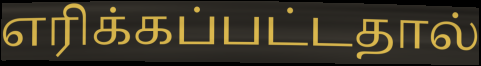
எரிக்கப்பட்டதால்